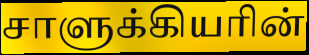
சாளுக்கியரின்